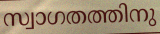
സ്വാഗതത്തിനു